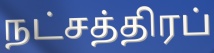
நட்சத்திரப்